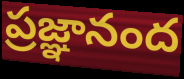
ప్రజ్ఞానంద